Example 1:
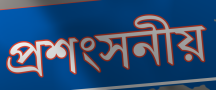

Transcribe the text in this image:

প্রশংসনীয়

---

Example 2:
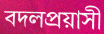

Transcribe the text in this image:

বদলপ্রয়াসী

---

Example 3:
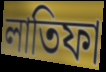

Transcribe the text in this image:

লাতিফা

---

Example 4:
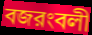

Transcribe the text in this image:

বজরংবলী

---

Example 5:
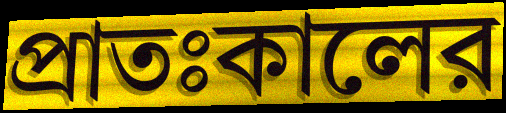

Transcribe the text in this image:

প্রাতঃকালের